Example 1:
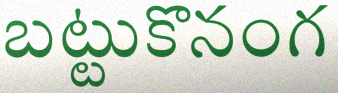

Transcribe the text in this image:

బట్టుకొనంగ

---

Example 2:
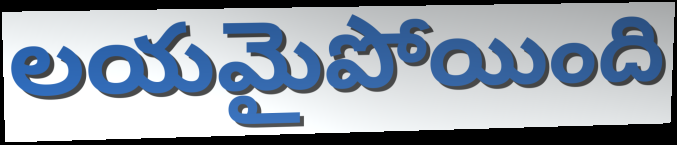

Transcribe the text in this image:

లయమైపోయింది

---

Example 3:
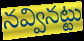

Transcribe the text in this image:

నవ్వినట్టు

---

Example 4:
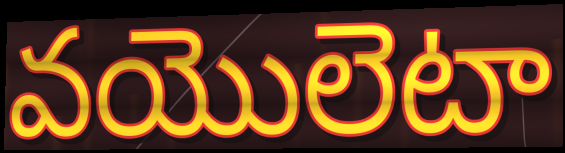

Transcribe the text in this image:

వయొలెటా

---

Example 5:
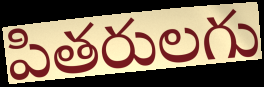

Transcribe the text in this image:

పితరులగు